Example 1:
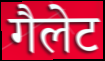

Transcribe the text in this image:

गैलेट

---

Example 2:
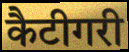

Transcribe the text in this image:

कैटीगरी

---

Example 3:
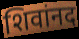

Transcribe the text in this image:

शिवांनद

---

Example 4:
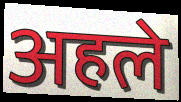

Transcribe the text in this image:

अहले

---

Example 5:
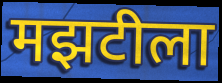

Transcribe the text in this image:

मझटीला